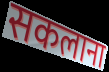
सकलाना